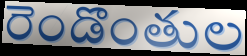
రెండొంతుల